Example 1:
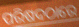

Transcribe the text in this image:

ପରିଷଦଠାରେ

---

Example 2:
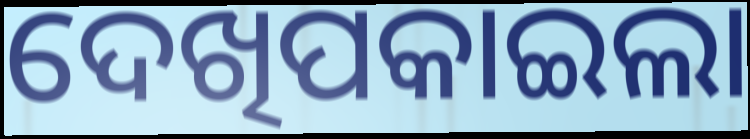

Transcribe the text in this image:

ଦେଖିପକାଇଲା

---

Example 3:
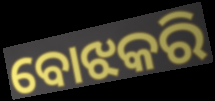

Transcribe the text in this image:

ବୋଝକରି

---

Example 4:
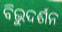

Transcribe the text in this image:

ବିଭୁଦର୍ଶନ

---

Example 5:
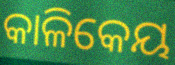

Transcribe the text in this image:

କାଳିକେୟ